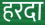
हरदा